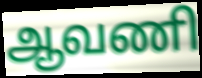
ஆவணி